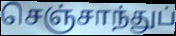
செஞ்சாந்துப்